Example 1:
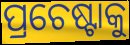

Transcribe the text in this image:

ପ୍ରଚେଷ୍ଟାକୁ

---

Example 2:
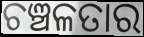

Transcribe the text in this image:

ଚଞ୍ଚଳତାର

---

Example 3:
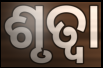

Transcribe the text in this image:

ଶୃତ୍ୱା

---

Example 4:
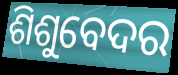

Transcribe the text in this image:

ଶିଶୁବେଦର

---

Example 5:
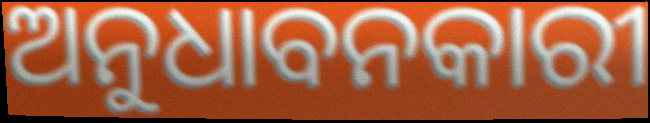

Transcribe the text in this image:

ଅନୁଧାବନକାରୀ